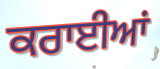
ਕਰਾਈਆਂ